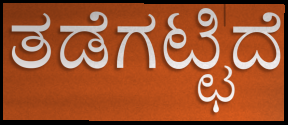
ತಡೆಗಟ್ಟಿದೆ